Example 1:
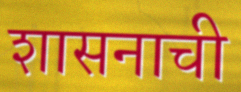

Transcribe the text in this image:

शासनाची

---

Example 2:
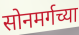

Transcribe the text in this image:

सोनमर्गच्या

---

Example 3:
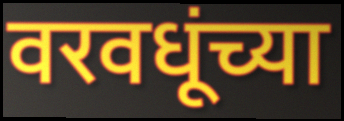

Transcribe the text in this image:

वरवधूंच्या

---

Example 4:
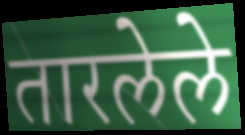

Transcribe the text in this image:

तारलेले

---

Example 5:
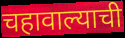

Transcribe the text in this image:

चहावाल्याची